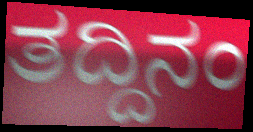
ತದ್ದಿನಂ